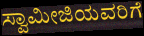
ಸ್ವಾಮೀಜಿಯವರಿಗೆ